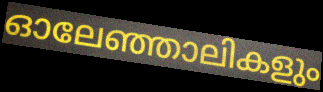
ഓലേഞ്ഞാലികളും